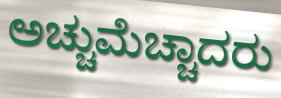
ಅಚ್ಚುಮೆಚ್ಚಾದರು